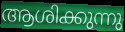
ആശിക്കുന്നു